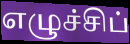
எழுச்சிப்